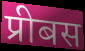
प्रीबस